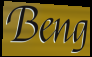
Beng